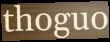
thoguo